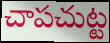
చాపచుట్ట